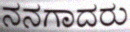
ನನಗಾದರು